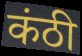
कंठी